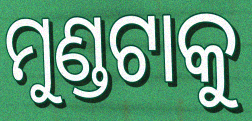
ମୁଣ୍ଡଟାକୁ